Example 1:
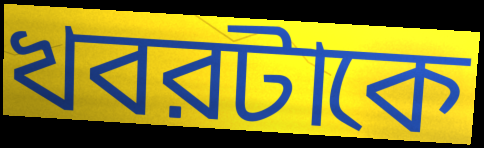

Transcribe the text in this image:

খবরটাকে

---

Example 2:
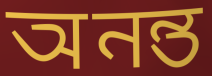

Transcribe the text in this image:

অনন্ত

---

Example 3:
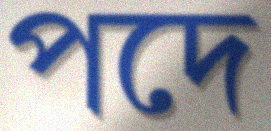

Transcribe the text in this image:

পদে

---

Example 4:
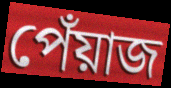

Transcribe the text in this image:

পেঁয়াজ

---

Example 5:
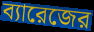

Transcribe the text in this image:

ব্যারেজের